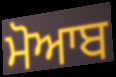
ਮੋਆਬ